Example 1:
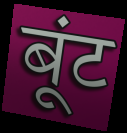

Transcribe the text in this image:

बूंट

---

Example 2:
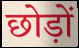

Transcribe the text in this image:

छोड़ों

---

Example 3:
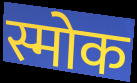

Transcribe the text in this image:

स्मोक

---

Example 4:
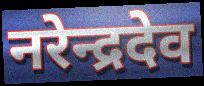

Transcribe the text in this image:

नरेन्द्रदेव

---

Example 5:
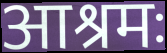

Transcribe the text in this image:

आश्रमः